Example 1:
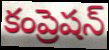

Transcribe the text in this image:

కంప్రెషన్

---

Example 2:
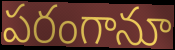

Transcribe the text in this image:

పరంగానూ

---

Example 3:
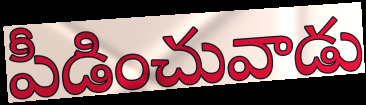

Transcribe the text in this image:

పీడించువాడు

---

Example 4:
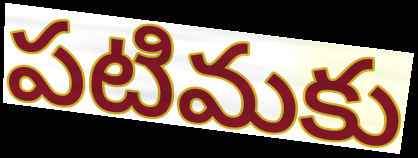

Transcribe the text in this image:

పటిమకు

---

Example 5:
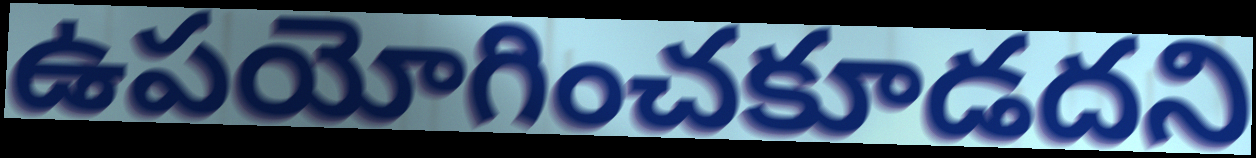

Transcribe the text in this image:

ఉపయోగించకూడదని